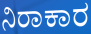
ನಿರಾಕಾರ